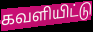
கவளியிட்டு